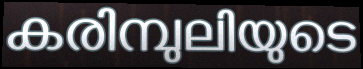
കരിമ്പുലിയുടെ